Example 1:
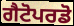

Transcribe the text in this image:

ਗੈਟੋਪਰਡੋ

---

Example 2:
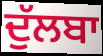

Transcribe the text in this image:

ਦੁੱਲਬਾ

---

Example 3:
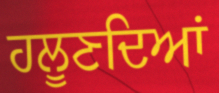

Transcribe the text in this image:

ਹਲੂਣਦਿਆਂ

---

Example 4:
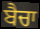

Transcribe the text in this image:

ਬੈਚਾ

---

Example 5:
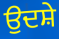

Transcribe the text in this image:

ਉਦਸ਼ੇ